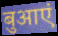
बुआएं